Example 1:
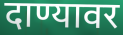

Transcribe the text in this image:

दाण्यावर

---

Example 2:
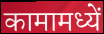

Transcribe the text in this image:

कामामध्यें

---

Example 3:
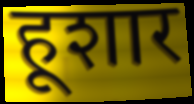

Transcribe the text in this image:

हूशार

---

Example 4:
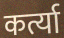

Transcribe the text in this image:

कर्त्या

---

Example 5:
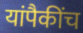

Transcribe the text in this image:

यांपैकींच